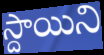
స్దాయిని